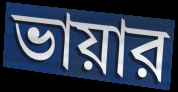
ভায়ার